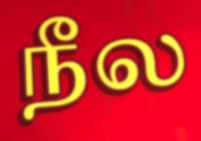
நீல